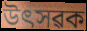
উৎসৱক